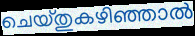
ചെയ്തുകഴിഞ്ഞാൽ